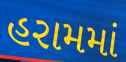
હરામમાં